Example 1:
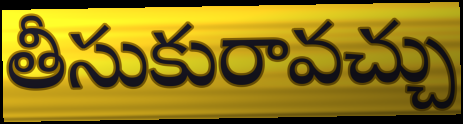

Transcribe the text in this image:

తీసుకురావచ్చు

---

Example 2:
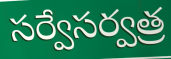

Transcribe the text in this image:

సర్వేసర్వత్ర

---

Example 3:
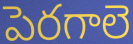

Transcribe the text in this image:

పెరగాలె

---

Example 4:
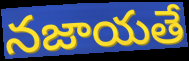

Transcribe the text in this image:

నజాయతే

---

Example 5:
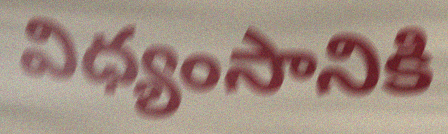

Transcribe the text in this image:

విధ్యంసానికి